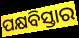
ପକ୍ଷବିସ୍ତାର